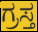
ಗ್ರಸ್ತ